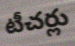
టీచర్లు